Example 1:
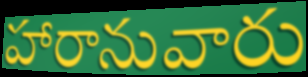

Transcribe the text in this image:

హారానువారు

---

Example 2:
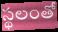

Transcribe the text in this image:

స్థలంతో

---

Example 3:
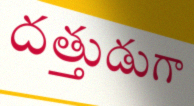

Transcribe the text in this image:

దత్తుడుగా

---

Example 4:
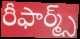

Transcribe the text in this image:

రీఫార్మ్స్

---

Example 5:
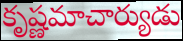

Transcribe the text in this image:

కృష్ణమాచార్యుడు